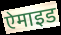
ऐमाइड